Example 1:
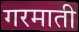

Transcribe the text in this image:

गरमाती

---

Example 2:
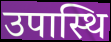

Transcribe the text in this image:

उपास्थि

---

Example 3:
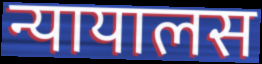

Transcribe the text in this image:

न्यायालस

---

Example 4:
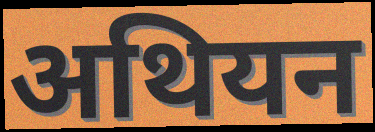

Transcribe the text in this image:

अथियन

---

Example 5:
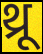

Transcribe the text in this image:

थ्रू